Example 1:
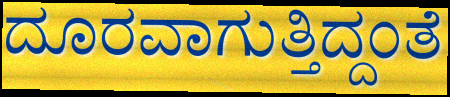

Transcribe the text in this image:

ದೂರವಾಗುತ್ತಿದ್ದಂತೆ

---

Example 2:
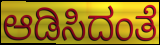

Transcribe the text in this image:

ಆಡಿಸಿದಂತೆ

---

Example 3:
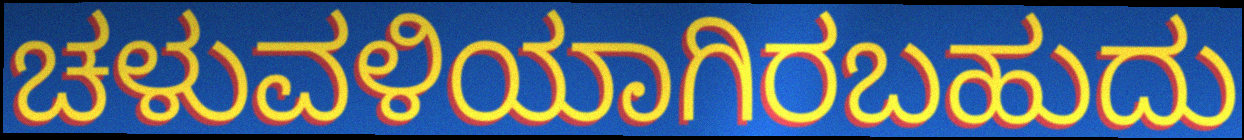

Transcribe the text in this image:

ಚಳುವಳಿಯಾಗಿರಬಹುದು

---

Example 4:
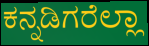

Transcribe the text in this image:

ಕನ್ನಡಿಗರೆಲ್ಲಾ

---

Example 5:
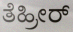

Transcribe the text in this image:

ತೆಹ್ರೀರ್